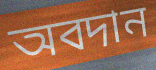
অবদান